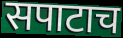
सपाटाच